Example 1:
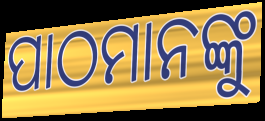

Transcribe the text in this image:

ପାଠମାନଙ୍କୁ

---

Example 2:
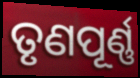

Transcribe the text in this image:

ତୃଣପୂର୍ଣ୍ଣ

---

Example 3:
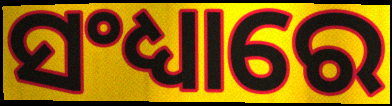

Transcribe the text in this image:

ସଂଧ୍ୟାରେ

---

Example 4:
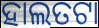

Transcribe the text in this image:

ହାଲତଟା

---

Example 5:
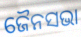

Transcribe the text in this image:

ଜୈନସଭା